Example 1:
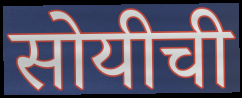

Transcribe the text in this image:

सोयीची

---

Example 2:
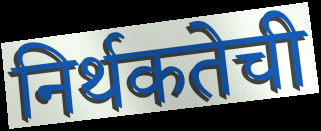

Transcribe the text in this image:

निर्थकतेची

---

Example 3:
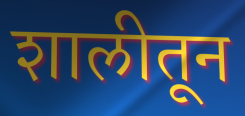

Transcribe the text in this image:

शालीतून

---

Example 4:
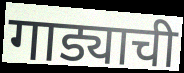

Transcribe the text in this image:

गाड्याची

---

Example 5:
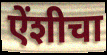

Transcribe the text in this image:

ऐंशीचा